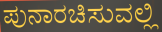
ಪುನಾರಚಿಸುವಲ್ಲಿ